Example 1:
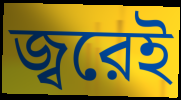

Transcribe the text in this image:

জ্বরেই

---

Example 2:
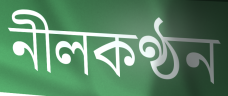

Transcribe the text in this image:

নীলকণ্ঠন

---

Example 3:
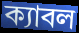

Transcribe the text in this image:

ক্যাবল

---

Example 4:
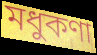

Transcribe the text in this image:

মধুকণা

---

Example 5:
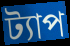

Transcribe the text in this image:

ট্যাপ